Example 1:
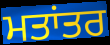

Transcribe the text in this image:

ਮਤਾਂਤਰ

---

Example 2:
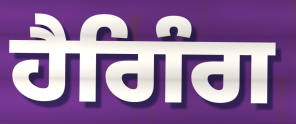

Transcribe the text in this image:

ਹੈਗਿੰਗ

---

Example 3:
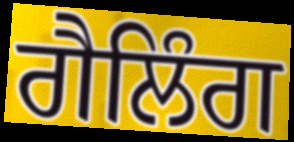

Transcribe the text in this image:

ਗੈਲਿੰਗ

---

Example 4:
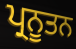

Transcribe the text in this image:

ਪ੍ਰਨੂਤਨ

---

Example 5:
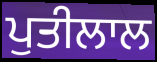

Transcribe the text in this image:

ਪੁਤੀਲਾਲ